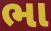
ભા